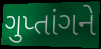
ગુપ્તાંગને